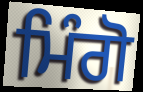
ਮਿੰਗੋ